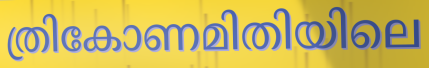
ത്രികോണമിതിയിലെ